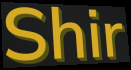
Shir